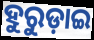
ହୁରୁଡ଼ାଇ